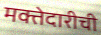
मक्तेदारीची